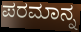
ಪರಮಾನ್ನ